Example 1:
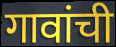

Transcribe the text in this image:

गावांची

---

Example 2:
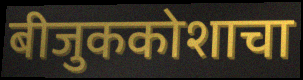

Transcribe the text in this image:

बीजुककोशाचा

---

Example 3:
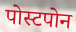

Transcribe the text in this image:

पोस्टपोन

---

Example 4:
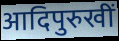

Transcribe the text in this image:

आदिपुरुखीं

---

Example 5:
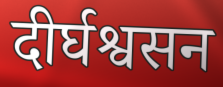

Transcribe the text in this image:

दीर्घश्वसन